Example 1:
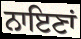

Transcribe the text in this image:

ਨਾਇਣਾਂ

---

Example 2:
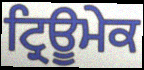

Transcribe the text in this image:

ਟ੍ਰਿਊਮੇਕ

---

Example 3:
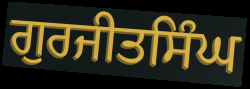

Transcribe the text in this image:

ਗੁਰਜੀਤਸਿੰਘ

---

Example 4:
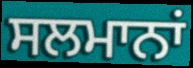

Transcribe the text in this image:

ਸਲਮਾਨਾਂ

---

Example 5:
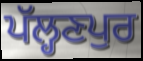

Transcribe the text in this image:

ਪੱਲ੍ਹਣਪੁਰ